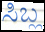
ಸಿಬ್ಲ